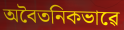
অবৈতনিকভাৱে